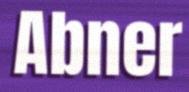
Abner